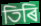
তিৰি